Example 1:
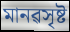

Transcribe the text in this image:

মানৱসৃষ্ট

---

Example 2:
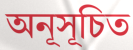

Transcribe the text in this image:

অনূসূচিত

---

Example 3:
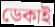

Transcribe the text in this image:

ডেকাই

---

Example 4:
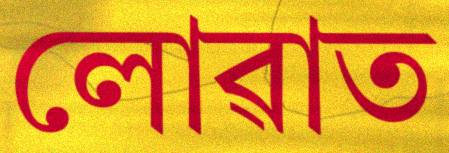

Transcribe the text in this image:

লোৱাত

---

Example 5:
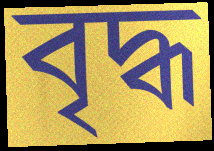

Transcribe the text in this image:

বৃদ্ধ